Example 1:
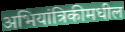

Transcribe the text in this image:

अभियांत्रिकीमधील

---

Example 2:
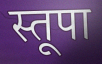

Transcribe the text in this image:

स्तूपा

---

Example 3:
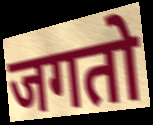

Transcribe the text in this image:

जगतो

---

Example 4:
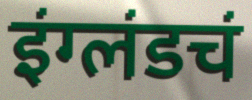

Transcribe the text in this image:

इंग्लंडचं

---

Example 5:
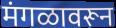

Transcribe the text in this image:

मंगळावरून